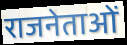
राजनेताओं